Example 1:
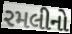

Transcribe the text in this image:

રમલીનો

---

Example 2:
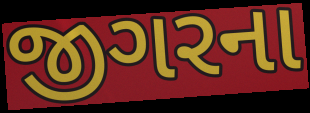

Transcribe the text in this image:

જીગરના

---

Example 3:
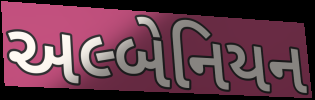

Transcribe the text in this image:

અલ્બેનિયન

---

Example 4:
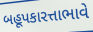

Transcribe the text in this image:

બહૂપકારત્તાભાવે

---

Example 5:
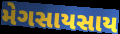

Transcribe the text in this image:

મેગસાયસાય